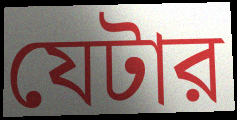
যেটার